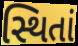
સ્થિતાં